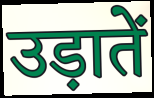
उड़ातें